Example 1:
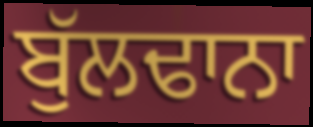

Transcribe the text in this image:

ਬੁੱਲਢਾਨਾ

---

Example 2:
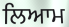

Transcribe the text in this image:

ਲਿਆਮ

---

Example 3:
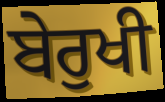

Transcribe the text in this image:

ਬੇਰੁਖੀ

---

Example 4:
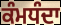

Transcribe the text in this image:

ਕੰਮਧੰਦਾ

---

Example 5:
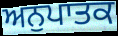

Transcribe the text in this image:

ਅਨੁਪਾਤਕ